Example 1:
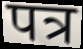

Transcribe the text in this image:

पत्र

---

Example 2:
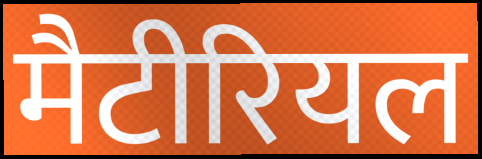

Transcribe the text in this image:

मैटीरियल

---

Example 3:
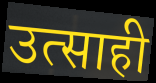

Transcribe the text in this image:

उत्साही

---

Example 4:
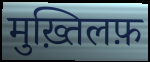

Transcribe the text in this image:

मुख़्तिलफ़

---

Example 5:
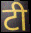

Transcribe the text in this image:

टी